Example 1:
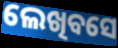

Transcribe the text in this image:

ଲେଖିବସେ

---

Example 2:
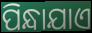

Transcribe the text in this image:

ପିନ୍ଧାଯାଏ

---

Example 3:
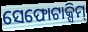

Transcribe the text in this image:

ସେଫୋଟାକ୍ସିମ୍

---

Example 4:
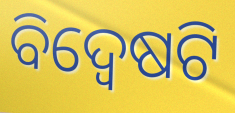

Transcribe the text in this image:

ବିଦ୍ୱେଷଟି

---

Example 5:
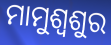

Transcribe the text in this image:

ମାମୁଶ୍ବଶୁର